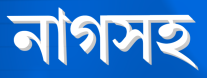
নাগসহ